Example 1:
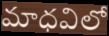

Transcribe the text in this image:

మాధవిలో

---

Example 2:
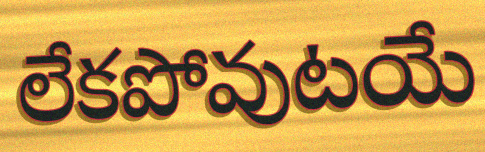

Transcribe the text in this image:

లేకపోవుటయే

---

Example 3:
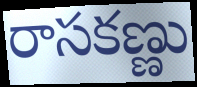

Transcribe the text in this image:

రాసకణ్ణు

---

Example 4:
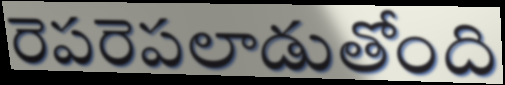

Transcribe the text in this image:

రెపరెపలాడుతోంది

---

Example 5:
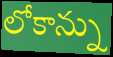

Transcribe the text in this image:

లోకాన్ను